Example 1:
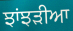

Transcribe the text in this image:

ਝਾਂਝੜੀਆ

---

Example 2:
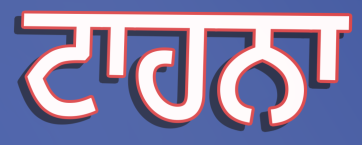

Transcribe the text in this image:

ਟਾਹਨਾ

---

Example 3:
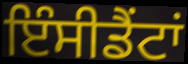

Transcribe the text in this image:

ਇੰਸੀਡੈਂਟਾਂ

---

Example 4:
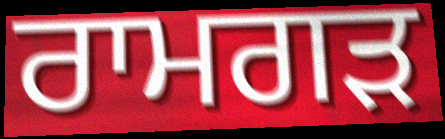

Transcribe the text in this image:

ਰਾਮਗੜ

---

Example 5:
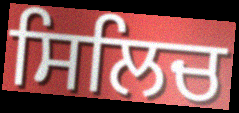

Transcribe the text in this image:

ਸਿਲਿਚ